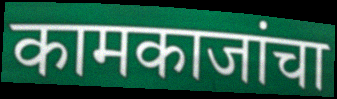
कामकाजांचा